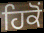
ਹਿਕੋਂ